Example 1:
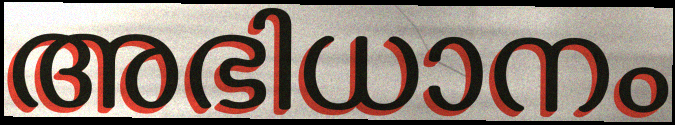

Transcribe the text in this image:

അഭിധാനം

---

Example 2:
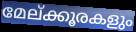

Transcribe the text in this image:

മേല്ക്കൂരകളും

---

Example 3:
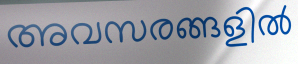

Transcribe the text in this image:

അവസരങ്ങളിൽ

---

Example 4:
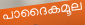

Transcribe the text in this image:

പാദൈകമൂല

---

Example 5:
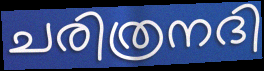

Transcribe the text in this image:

ചരിത്രനദി